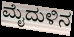
ಮೈದುಳಿನ